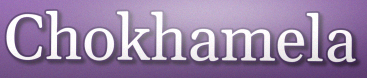
Chokhamela